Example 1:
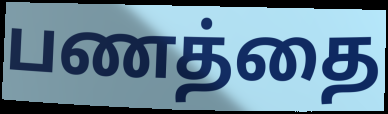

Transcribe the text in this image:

பணத்தை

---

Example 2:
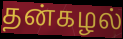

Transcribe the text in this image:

தன்கழல்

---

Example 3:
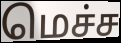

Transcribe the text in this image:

மெச்ச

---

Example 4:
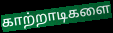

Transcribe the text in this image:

காற்றாடிகளை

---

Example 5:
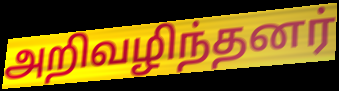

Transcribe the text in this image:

அறிவழிந்தனர்